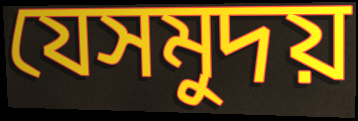
যেসমুদয়